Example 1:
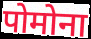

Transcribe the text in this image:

पोमोना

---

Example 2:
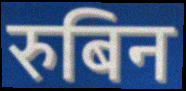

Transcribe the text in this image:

रुबिन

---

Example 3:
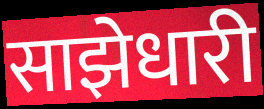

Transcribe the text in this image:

साझेधारी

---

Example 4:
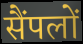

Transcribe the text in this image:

सैंपलों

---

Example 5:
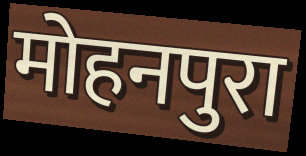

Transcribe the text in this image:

मोहनपुरा